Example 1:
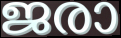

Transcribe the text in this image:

ജരാ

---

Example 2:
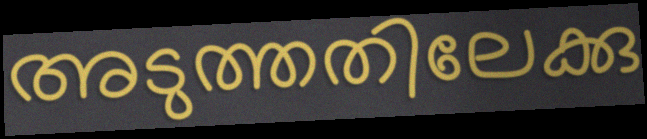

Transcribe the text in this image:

അടുത്തതിലേക്കു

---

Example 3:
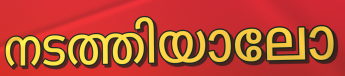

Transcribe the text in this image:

നടത്തിയാലോ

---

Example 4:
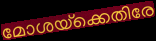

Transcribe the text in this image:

മോശയ്‌ക്കെതിരേ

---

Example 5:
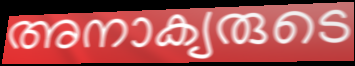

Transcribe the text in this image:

അനാക്യരുടെ